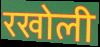
रखोली